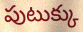
పుటుక్కు